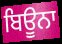
ਬਿਊਨਾ